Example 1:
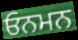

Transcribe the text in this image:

ਓਨਮਨ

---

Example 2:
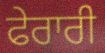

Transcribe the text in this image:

ਫੇਰਾਰੀ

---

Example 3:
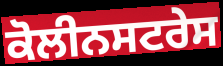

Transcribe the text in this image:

ਕੋਲੀਨਸਟਰੇਸ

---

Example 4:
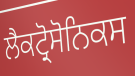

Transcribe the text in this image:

ਲੈਕਟ੍ਰੋਸੋਨਿਕਸ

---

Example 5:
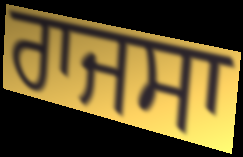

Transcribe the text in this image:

ਰਾਜਸਾ